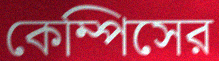
কেম্পিসের